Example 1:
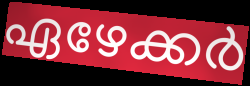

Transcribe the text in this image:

ഏഴേക്കർ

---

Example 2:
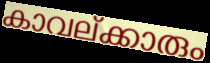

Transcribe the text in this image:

കാവല്ക്കാരും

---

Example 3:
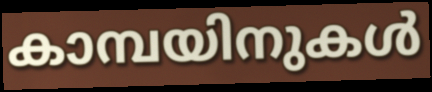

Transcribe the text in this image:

കാമ്പയിനുകൾ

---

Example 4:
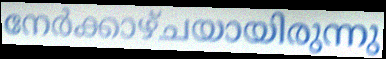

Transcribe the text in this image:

നേർക്കാഴ്ചയായിരുന്നു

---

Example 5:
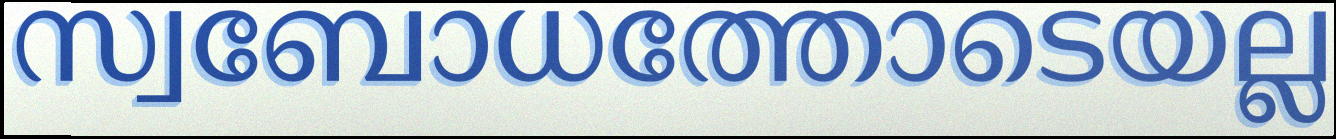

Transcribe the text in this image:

സ്വബോധത്തോടെയല്ല